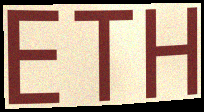
ETH